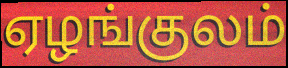
ஏழங்குலம்